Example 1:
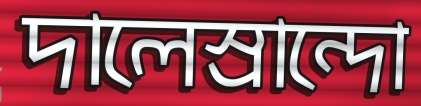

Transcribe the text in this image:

দালেস্রান্দো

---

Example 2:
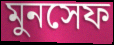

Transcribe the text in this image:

মুনসেফ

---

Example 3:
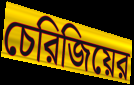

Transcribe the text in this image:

চেরিজিয়ের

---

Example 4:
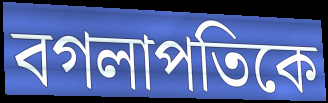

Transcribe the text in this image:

বগলাপতিকে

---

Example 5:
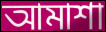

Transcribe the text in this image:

আমাশা